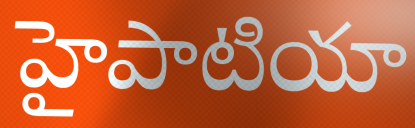
హైపాటియా